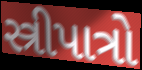
સ્ત્રીપાત્રો